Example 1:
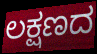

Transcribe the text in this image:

ಲಕ್ಷಣದ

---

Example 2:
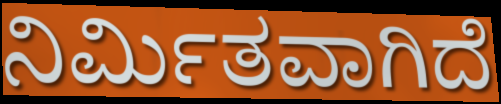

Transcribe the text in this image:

ನಿರ್ಮಿತವಾಗಿದೆ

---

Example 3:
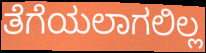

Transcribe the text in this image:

ತೆಗೆಯಲಾಗಲಿಲ್ಲ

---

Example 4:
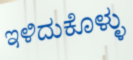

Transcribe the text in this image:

ಇಳಿದುಕೊಳ್ಳು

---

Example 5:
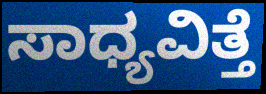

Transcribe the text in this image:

ಸಾಧ್ಯವಿತ್ತೆ